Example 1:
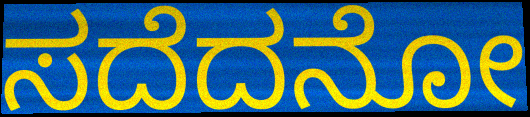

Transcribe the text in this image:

ಸದೆದನೋ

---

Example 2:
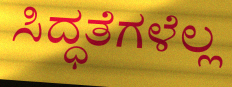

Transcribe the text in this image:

ಸಿದ್ಧತೆಗಳೆಲ್ಲ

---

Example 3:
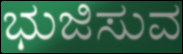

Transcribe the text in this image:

ಭುಜಿಸುವ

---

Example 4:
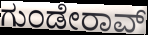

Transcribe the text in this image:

ಗುಂಡೇರಾವ್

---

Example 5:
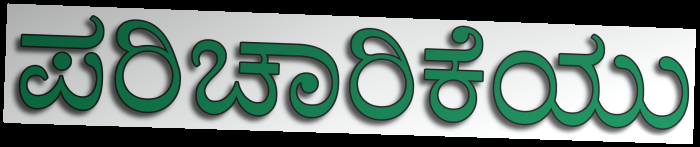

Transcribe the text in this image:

ಪರಿಚಾರಿಕೆಯು